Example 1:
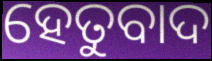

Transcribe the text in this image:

ହେତୁବାଦ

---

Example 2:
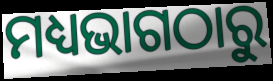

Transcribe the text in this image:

ମଧ୍ୟଭାଗଠାରୁ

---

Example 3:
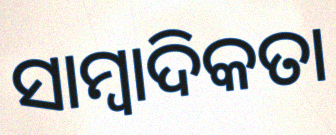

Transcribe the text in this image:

ସାମ୍ୱାଦିକତା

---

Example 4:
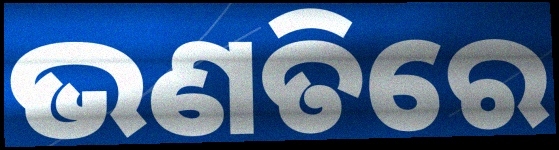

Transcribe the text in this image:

ଭଣତିରେ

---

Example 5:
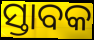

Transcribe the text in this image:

ସ୍ତାବକ